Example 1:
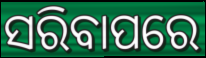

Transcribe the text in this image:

ସରିବାପରେ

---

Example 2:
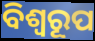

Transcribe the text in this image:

ବିଶ୍ୱରୂପ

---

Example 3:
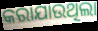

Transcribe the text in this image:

କରାଯାଉଥିଲା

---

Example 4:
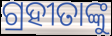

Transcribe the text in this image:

ଗ୍ରହୀତାଙ୍କୁ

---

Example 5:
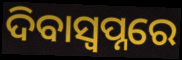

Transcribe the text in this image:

ଦିବାସ୍ବପ୍ନରେ